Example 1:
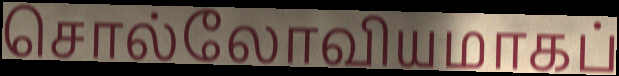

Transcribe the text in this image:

சொல்லோவியமாகப்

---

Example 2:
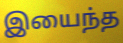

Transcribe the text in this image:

இயைந்த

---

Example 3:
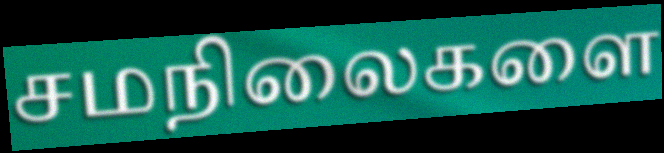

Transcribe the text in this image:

சமநிலைகளை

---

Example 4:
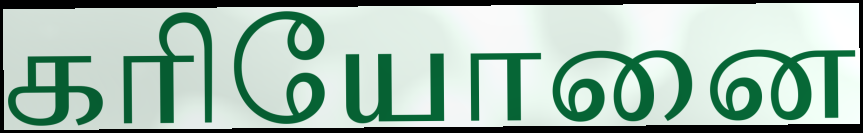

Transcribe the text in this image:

கரியோனை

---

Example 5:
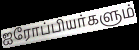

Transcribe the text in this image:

ஐரோப்பியர்களும்